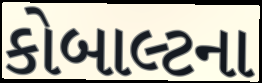
કોબાલ્ટના